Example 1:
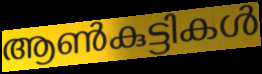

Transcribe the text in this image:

ആൺകുട്ടികൾ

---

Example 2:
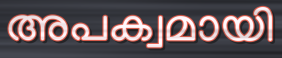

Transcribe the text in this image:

അപക്വമായി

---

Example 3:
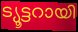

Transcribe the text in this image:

ട്യൂട്ടറായി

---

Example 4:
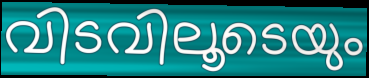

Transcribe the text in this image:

വിടവിലൂടെയും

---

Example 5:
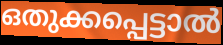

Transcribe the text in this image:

ഒതുക്കപ്പെട്ടാൽ